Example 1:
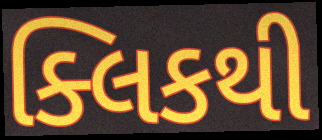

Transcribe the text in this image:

ક્લિકથી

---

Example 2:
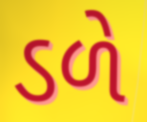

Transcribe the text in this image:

ડળે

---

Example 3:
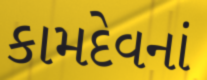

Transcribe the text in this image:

કામદેવનાં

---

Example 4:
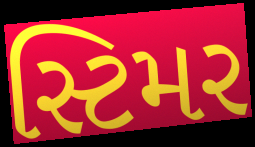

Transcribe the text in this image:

સ્ટિમર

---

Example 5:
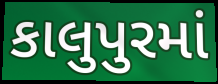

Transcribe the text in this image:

કાલુપુરમાં